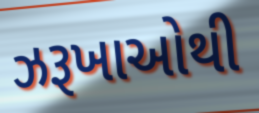
ઝરૂખાઓથી